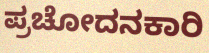
ಪ್ರಚೋದನಕಾರಿ